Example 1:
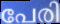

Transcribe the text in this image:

പേരി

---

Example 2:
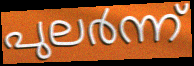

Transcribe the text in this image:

പുലർന്ന്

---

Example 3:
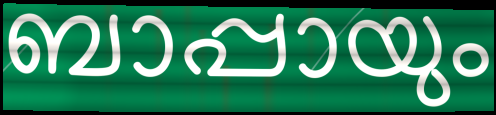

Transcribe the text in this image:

ബാപ്പായും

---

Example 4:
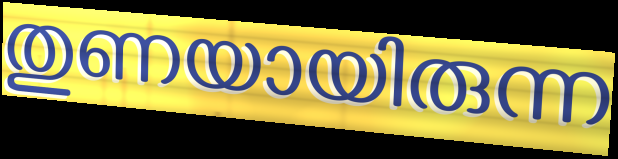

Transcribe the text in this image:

തുണയായിരുന്ന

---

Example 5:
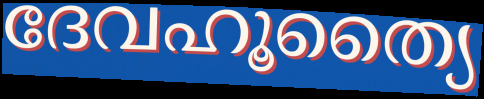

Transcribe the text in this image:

ദേവഹൂത്യൈ